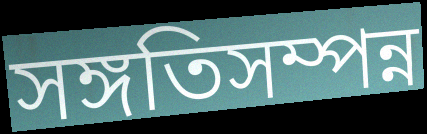
সঙ্গতিসম্পন্ন